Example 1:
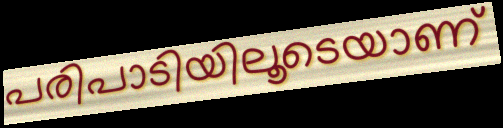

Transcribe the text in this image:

പരിപാടിയിലൂടെയാണ്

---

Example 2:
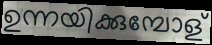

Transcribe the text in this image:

ഉന്നയിക്കുമ്പോള്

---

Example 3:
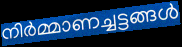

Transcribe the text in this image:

നിർമ്മാണച്ചട്ടങ്ങൾ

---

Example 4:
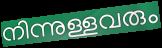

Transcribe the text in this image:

നിന്നുള്ളവരും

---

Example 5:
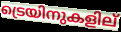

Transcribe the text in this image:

ട്രെയിനുകളില്